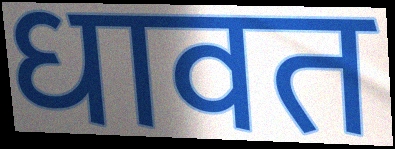
धावत